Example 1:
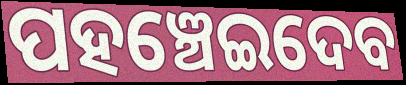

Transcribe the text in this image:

ପହଞ୍ଚେଇଦେବ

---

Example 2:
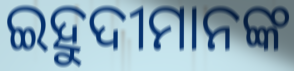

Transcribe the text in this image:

ଇହୁଦୀମାନଙ୍କ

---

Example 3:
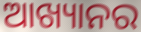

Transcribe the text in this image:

ଆଖ୍ୟାନର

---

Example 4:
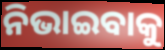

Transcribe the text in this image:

ନିଭାଇବାକୁ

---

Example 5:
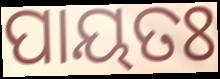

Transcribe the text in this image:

ପାୟତଃ